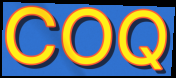
COQ